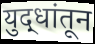
युद्धांतून